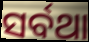
ସର୍ବଥା